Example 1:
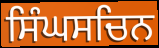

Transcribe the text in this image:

ਸਿੰਘਸਚਿਨ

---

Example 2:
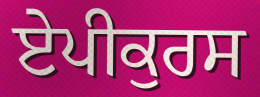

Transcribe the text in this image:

ਏਪੀਕੁਰਸ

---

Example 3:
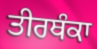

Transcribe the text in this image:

ਤੀਰਥੰਕਾ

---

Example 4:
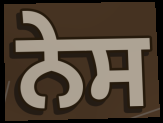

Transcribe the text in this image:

ਨੇਸ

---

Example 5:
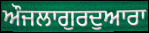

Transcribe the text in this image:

ਔਜਲਾਗੁਰਦੁਆਰਾ